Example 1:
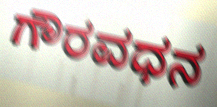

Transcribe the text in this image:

ಗೌರವಧನ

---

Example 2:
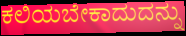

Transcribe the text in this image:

ಕಲಿಯಬೇಕಾದುದನ್ನು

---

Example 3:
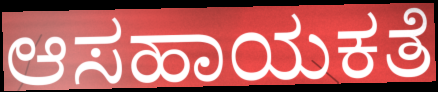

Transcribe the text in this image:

ಆಸಹಾಯಕತೆ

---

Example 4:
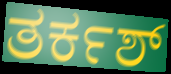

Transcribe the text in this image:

ತರ್ಕಶ್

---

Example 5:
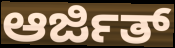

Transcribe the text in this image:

ಆರ್ಜಿತ್